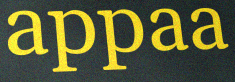
appaa